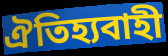
ঐতিহ্যবাহী